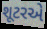
શૂટરએ